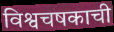
विश्वचषकाची